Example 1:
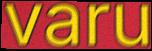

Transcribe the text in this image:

varu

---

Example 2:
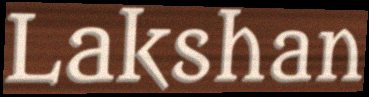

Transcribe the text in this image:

Lakshan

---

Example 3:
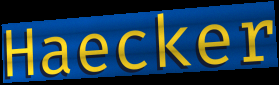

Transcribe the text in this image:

Haecker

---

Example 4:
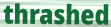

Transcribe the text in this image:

thrashed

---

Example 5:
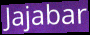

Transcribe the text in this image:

Jajabar